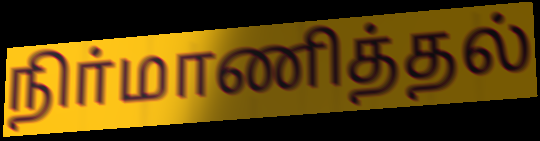
நிர்மாணித்தல்